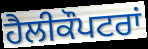
ਹੈਲੀਕੌਪਟਰਾਂ